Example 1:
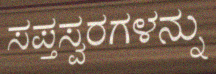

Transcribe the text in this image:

ಸಪ್ತಸ್ವರಗಳನ್ನು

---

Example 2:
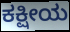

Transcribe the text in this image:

ಕಕ್ಷೀಯ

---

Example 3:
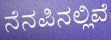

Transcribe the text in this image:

ನೆನಪಿನಲ್ಲಿವೆ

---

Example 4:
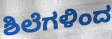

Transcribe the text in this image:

ಶಿಲೆಗಳಿಂದ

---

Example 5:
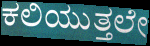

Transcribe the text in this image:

ಕಲಿಯುತ್ತಲೇ